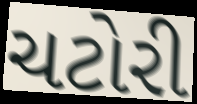
ચટોરી